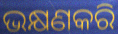
ଭକ୍ଷଣକରି